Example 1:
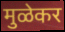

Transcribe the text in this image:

मुळेकर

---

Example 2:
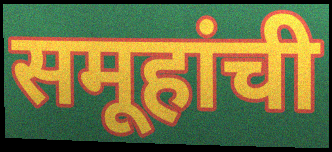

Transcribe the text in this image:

समूहांची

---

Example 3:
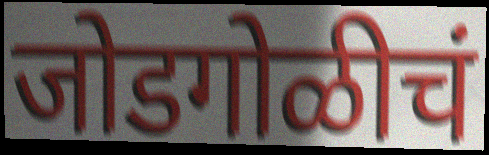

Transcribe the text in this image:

जोडगोळीचं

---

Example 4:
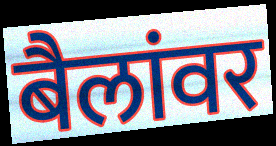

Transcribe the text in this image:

बैलांवर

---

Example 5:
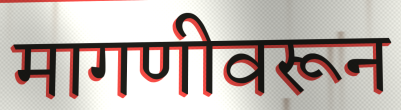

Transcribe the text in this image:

मागणीवरून